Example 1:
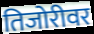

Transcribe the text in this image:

तिजोरीवर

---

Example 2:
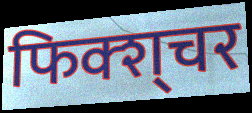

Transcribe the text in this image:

फिक्श्चर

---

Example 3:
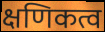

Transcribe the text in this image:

क्षणिकत्व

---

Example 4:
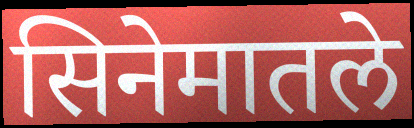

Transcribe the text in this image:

सिनेमातले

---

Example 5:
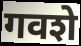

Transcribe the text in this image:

गवशे